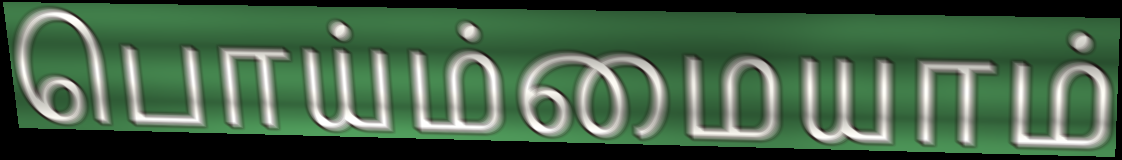
பொய்ம்மையாம்